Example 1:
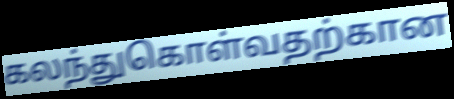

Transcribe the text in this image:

கலந்துகொள்வதற்கான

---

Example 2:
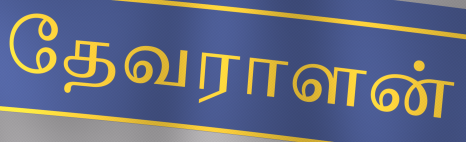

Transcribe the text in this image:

தேவராளன்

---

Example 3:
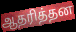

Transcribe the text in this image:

ஆதரித்தன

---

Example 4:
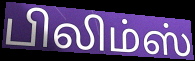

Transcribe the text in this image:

பிலிம்ஸ்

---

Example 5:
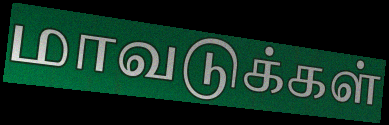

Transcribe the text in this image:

மாவடுக்கள்